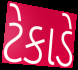
ટેકાડે